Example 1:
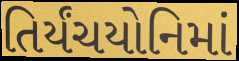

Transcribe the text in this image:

તિર્યંચયોનિમાં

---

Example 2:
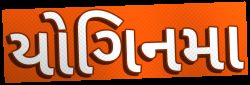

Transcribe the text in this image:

યોગિનમા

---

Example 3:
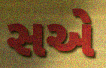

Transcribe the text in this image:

સએ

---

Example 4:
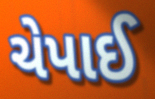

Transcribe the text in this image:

ચેપાઈ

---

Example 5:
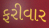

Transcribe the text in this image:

ફરીવાર